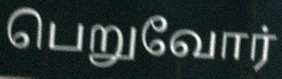
பெறுவோர்